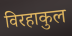
विरहाकुल